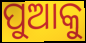
ପୁଆକୁ